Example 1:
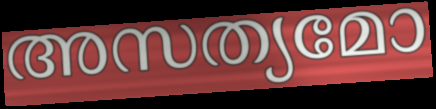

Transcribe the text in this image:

അസത്യമോ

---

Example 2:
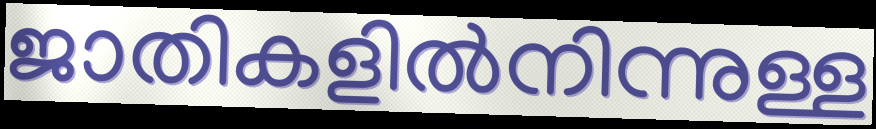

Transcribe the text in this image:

ജാതികളിൽനിന്നുള്ള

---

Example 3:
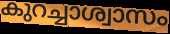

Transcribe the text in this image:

കുറച്ചാശ്വാസം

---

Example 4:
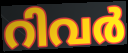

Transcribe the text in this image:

റിവർ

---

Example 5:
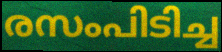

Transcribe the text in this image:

രസംപിടിച്ച